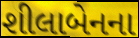
શીલાબેનના